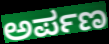
ಅರ್ಪಣ